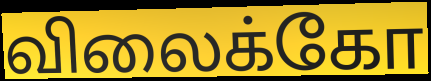
விலைக்கோ